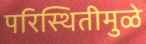
परिस्थितीमुळे